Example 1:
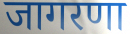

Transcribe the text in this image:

जागरणा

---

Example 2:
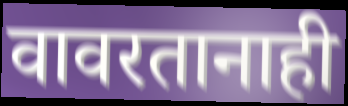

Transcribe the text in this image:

वावरतानाही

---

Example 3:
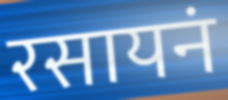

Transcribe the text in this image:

रसायनं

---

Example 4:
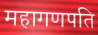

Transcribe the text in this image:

महागणपति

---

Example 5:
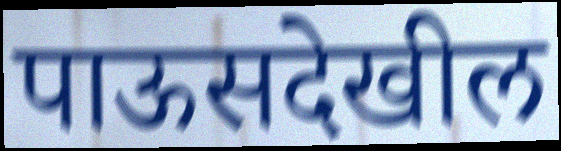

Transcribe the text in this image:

पाऊसदेखील